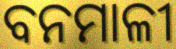
ବନମାଳୀ